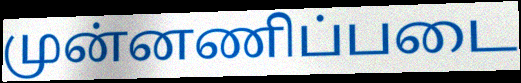
முன்னணிப்படை